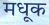
मधूक